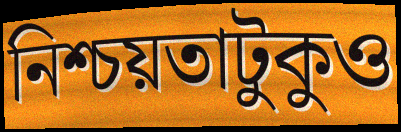
নিশ্চয়তাটুকুও